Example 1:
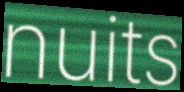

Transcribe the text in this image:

nuits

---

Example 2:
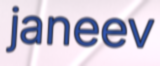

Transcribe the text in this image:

janeev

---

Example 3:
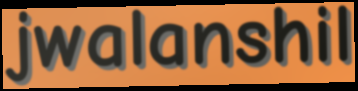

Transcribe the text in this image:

jwalanshil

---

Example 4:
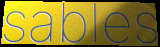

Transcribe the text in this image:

sables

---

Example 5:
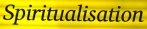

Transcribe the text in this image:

Spiritualisation